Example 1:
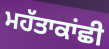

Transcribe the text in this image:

ਮਹੱਤਾਕਾਂਛੀ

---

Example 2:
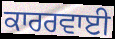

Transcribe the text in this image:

ਕਾਰਰਵਾਈ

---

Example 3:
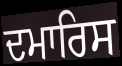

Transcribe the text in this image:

ਦਮਾਰਿਸ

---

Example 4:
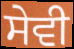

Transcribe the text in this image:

ਸੇਵੀ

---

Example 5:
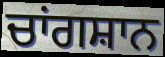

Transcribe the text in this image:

ਚਾਂਗਸ਼ਾਨ